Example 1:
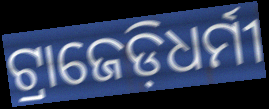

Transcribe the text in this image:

ଟ୍ରାଜେଡ଼ିଧର୍ମୀ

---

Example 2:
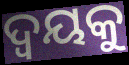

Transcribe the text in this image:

ଦ୍ୱୟକୁ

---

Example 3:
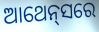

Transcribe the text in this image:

ଆଥେନ୍‍ସରେ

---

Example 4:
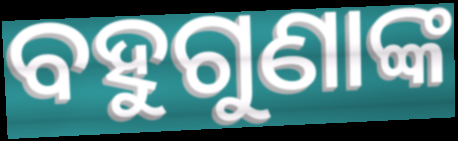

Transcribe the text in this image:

ବହୁଗୁଣାଙ୍କ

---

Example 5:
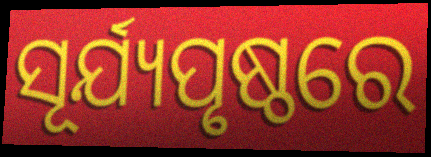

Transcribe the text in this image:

ସୂର୍ଯ୍ୟପୃଷ୍ଠରେ